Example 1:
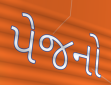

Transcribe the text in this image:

પેજનો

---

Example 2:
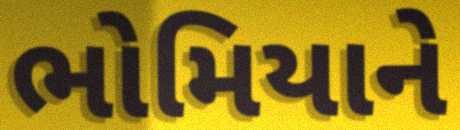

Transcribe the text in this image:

ભોમિયાને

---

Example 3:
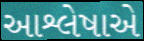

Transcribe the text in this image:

આશ્લેષાએ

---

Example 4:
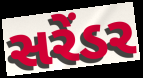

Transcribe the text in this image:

સરેંડર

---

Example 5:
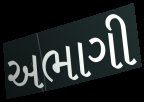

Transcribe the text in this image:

અભાગી